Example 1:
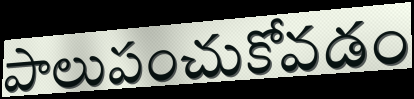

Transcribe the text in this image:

పాలుపంచుకోవడం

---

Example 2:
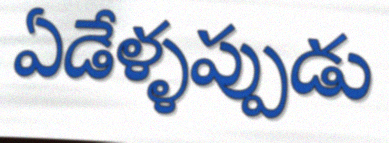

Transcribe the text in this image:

ఏడేళ్ళప్పుడు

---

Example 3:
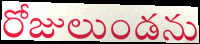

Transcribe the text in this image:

రోజులుండను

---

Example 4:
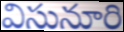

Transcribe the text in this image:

విసునూరి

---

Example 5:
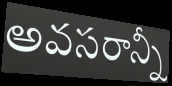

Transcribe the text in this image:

అవసరాన్నీ